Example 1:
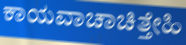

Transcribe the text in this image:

ಕಾಯವಾಚಾಚಿತ್ತೇಹಿ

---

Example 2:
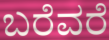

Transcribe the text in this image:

ಬರೆವರೆ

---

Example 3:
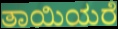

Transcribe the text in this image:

ತಾಯಿಯರೆ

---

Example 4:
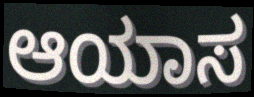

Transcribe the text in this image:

ಆಯಾಸ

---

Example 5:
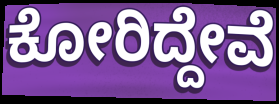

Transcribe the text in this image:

ಕೋರಿದ್ದೇವೆ